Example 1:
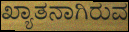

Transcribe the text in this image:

ಖ್ಯಾತನಾಗಿರುವ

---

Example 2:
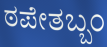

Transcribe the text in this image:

ಠಪೇತಬ್ಬಂ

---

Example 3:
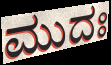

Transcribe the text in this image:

ಮುದಃ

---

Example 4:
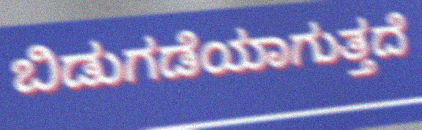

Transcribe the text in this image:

ಬಿಡುಗಡೆಯಾಗುತ್ತದೆ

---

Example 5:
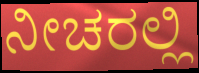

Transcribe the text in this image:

ನೀಚರಲ್ಲಿ